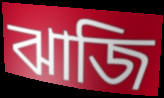
ঝাজি